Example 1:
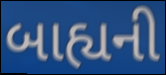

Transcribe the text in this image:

બાહ્યની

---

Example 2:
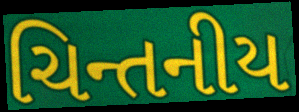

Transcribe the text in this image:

ચિન્તનીય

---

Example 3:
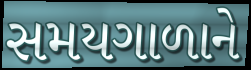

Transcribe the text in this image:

સમયગાળાને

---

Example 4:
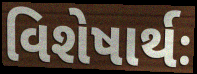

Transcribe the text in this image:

વિશેષાર્થઃ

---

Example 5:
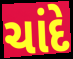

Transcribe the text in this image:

ચાંદે